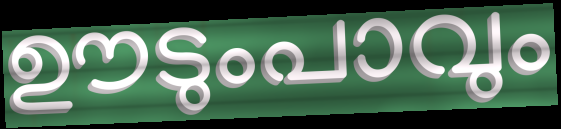
ഊടുംപാവും